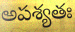
అపశ్యతః